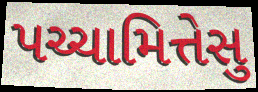
પચ્ચામિત્તેસુ